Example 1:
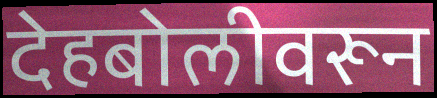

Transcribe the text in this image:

देहबोलीवरून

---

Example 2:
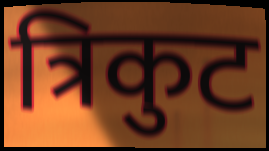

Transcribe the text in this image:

त्रिकुट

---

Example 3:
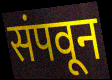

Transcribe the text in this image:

संपवून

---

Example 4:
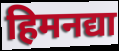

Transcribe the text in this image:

हिमनद्या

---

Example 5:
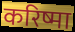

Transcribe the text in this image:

करिष्मा